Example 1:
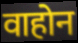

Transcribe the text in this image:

वाहोन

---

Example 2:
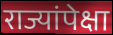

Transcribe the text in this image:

राज्यांपेक्षा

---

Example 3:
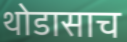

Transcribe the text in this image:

थोडासाच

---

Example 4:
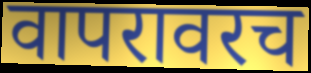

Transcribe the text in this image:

वापरावरच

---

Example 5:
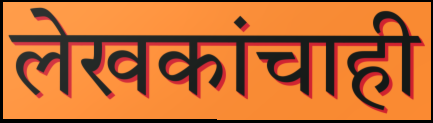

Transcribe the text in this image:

लेखकांचाही